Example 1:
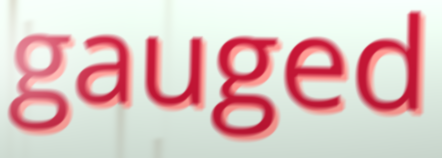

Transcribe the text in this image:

gauged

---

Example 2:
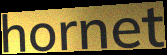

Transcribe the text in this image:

hornet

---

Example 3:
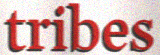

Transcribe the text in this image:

tribes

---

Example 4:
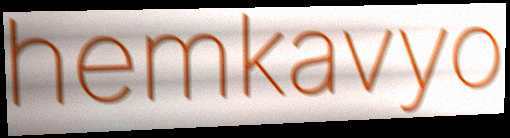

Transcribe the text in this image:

hemkavyo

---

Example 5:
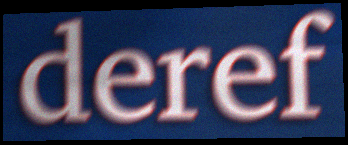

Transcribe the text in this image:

deref